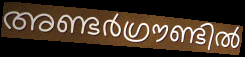
അണ്ടർഗ്രൗണ്ടിൽ